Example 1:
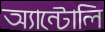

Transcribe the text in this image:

অ্যান্টোলি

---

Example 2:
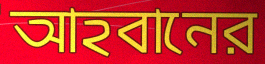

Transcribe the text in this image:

আহবানের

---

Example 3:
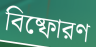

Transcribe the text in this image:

বিষ্ফোরণ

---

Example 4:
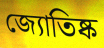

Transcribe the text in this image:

জ্যোতিষ্ক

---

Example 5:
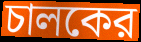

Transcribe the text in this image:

চালকের